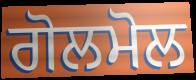
ਗੋਲਮੋਲ